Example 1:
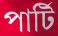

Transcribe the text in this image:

পাৰ্টি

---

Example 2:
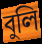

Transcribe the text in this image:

বুলি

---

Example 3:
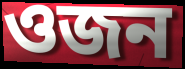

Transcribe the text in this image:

ওজন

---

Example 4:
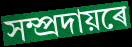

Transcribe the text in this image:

সম্প্ৰদায়ৰে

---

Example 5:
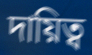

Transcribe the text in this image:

দায়িত্ব